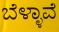
ಬೆಳ್ಳಾವೆ